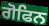
ਗੋਫਿਨ